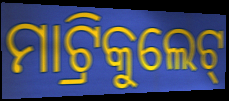
ମାଟ୍ରିକୁଲେଟ୍